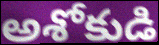
అశోకుడి